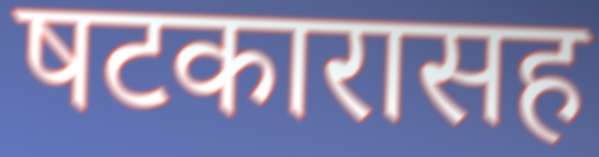
षटकारासह